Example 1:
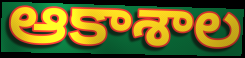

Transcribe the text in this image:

ఆకాశాల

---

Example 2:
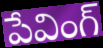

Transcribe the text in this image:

పేవింగ్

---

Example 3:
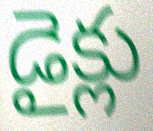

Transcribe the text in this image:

డైక్లు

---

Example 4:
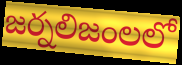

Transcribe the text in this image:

జర్నలిజంలలో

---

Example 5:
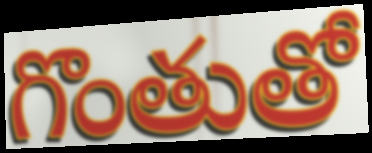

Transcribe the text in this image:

గొంతుతో